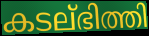
കടല്ഭിത്തി